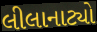
લીલાનાટ્યો